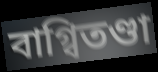
বাগ্বিতণ্ডা